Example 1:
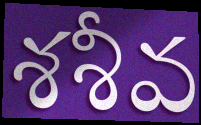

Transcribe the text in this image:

శశీవ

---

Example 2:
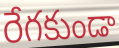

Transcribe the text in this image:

రేగకుండా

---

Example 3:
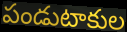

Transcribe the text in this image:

పండుటాకుల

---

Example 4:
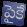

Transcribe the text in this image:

పైకే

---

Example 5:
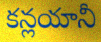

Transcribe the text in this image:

కన్లయానీ